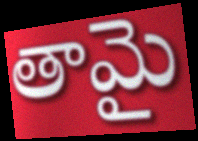
తామై